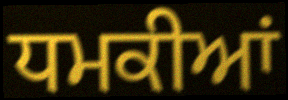
ਧਮਕੀਆਂ